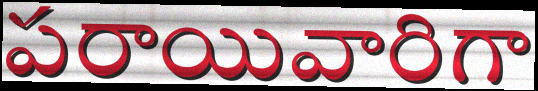
పరాయివారిగా